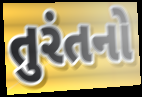
તુરંતનો